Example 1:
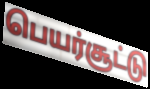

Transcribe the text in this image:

பெயர்சூட்டு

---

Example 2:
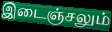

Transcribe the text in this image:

இடைஞ்சலும்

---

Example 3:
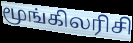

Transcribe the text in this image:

மூங்கிலரிசி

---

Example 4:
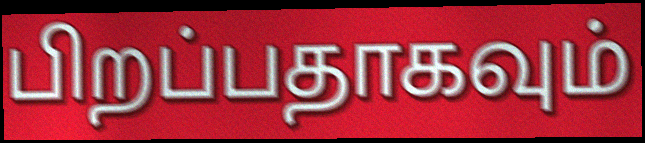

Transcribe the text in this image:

பிறப்பதாகவும்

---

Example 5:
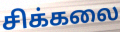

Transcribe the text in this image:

சிக்கலை